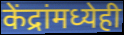
केंद्रांमध्येही